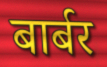
बार्बर